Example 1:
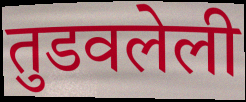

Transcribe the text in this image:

तुडवलेली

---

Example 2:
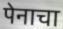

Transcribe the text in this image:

पेनाचा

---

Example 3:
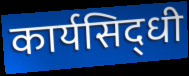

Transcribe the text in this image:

कार्यसिद्धी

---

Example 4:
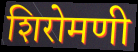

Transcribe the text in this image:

शिरोमणी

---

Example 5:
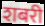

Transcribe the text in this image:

शबरी